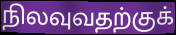
நிலவுவதற்குக்